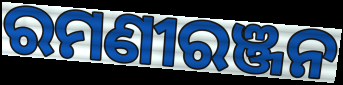
ରମଣୀରଞ୍ଜନ